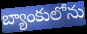
బ్యాంకులోను